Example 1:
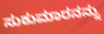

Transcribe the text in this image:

ಸುಕುಮಾರನನ್ನು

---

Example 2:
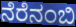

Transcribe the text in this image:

ನೆರೆನಂಬಿ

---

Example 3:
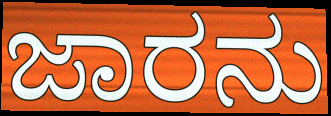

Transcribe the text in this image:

ಜಾರನು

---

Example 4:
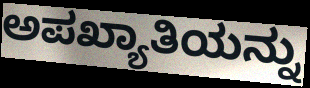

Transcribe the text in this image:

ಅಪಖ್ಯಾತಿಯನ್ನು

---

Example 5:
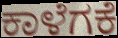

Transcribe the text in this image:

ಕಾಳೆಗಕೆ